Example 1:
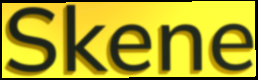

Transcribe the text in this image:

Skene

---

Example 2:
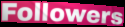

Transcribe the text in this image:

Followers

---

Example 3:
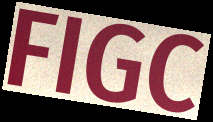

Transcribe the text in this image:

FIGC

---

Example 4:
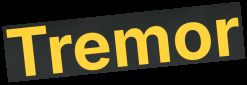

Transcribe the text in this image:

Tremor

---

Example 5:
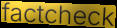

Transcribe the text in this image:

factcheck